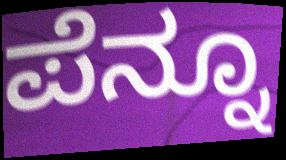
ಪೆನ್ನೂ